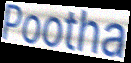
Pootha